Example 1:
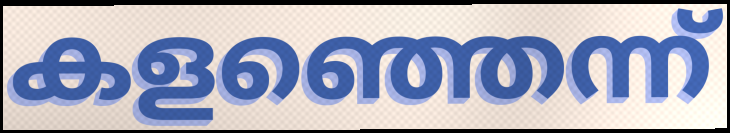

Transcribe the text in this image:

കളഞ്ഞെന്ന്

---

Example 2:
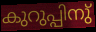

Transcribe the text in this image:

കുറുപ്പിനു്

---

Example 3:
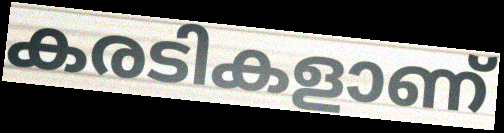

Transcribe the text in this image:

കരടികളാണ്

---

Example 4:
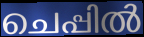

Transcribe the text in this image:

ചെപ്പിൽ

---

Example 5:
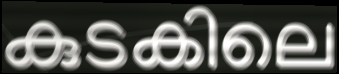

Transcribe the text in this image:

കുടകിലെ